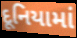
દૂનિયામાં